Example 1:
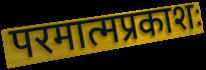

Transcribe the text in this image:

परमात्मप्रकाशः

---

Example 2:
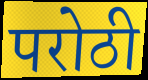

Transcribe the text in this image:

परोठी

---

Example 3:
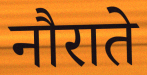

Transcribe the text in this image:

नौराते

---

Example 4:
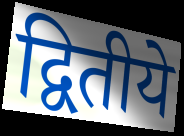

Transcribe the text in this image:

द्वितीये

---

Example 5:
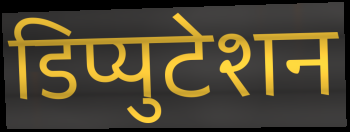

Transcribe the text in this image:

डिप्युटेशन